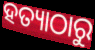
ହତ୍ୟାଠାରୁ